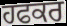
ਹਫਕਰ